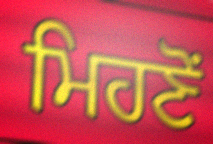
ਮਿਹਣੋਂ